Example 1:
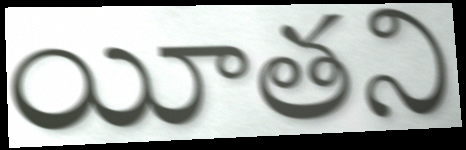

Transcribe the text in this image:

యీతని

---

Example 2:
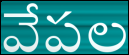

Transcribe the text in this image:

వేపల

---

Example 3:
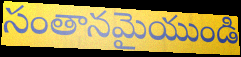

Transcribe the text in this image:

సంతానమైయుండి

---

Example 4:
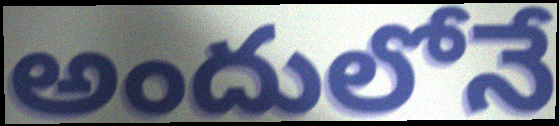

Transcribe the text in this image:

అందులోనే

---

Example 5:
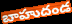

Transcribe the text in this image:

బాహుదండ